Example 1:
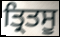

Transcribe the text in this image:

ਤ੍ਰਿਤਸੂ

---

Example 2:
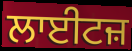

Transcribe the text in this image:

ਲਾਈਟਜ਼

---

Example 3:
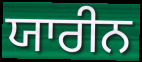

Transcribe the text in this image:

ਯਾਰੀਨ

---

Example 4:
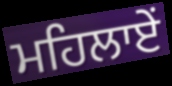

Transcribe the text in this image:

ਮਹਿਲਾਏਂ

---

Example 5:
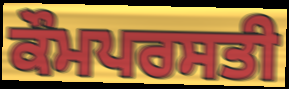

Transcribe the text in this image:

ਕੌਮਪਰਸਤੀ